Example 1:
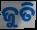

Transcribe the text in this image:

ଜୁତି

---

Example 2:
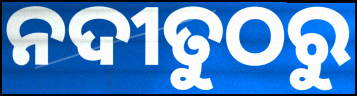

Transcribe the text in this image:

ନଦୀତୁଠରୁ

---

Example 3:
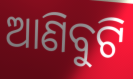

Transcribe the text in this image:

ଆଣିବୁଟି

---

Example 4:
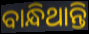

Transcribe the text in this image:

ବାନ୍ଧିଥାନ୍ତି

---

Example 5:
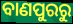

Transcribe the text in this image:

ବାଣପୁରରୁ